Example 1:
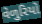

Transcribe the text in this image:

વેળુરિયો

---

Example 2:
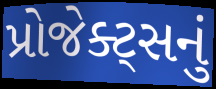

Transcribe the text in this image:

પ્રોજેક્ટ્સનું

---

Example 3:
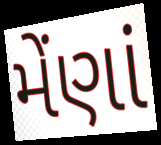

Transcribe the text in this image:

મેંણાં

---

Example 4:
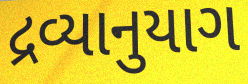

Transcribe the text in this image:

દ્રવ્યાનુયાગ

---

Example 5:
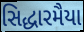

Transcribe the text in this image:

સિદ્ધારમૈયા